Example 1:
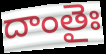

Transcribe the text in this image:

దాంతైః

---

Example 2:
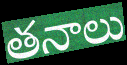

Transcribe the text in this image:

తనాలు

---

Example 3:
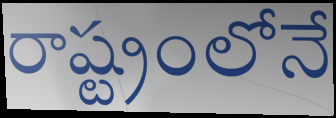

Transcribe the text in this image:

రాష్ట్రంలోనే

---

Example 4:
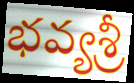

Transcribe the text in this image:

భవ్యశ్రీ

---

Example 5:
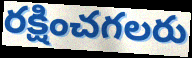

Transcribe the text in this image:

రక్షించగలరు